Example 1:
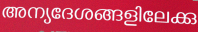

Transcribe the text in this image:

അന്യദേശങ്ങളിലേക്കു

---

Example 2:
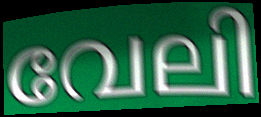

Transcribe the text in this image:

വേലി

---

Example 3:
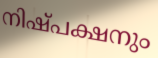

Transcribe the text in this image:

നിഷ്പക്ഷനും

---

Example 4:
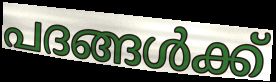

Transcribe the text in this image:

പദങ്ങൾക്ക്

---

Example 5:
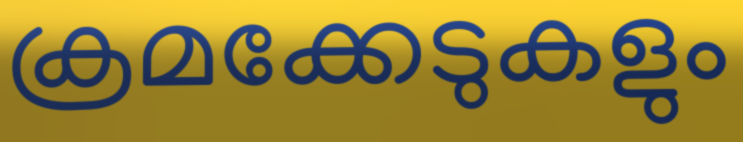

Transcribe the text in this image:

ക്രമക്കേടുകളും